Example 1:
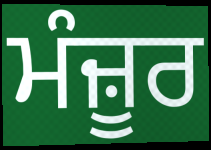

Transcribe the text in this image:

ਮੰਜ਼ੂਰ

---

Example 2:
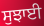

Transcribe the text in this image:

ਸੁਝਾਈ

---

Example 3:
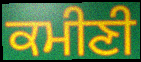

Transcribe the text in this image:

ਕਮੀਣੀ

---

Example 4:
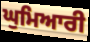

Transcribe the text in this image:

ਘੁਮਿਆਰੀ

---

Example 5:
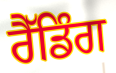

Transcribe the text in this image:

ਰੈੱਡਿੰਗ